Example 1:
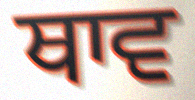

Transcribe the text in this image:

ਥਾਵ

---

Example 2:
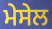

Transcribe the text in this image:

ਮੇਸੇਲ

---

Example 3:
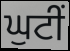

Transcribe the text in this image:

ਘੁਟੀਂ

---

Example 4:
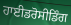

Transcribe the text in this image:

ਹਾਈਡਰੋਸੀਡਿੰਗ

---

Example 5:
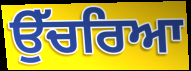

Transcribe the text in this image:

ਉੱਚਰਿਆ